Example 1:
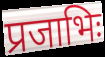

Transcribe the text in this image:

प्रजाभिः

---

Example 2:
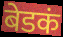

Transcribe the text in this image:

बेडकं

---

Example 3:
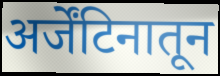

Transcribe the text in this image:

अर्जेंटिनातून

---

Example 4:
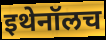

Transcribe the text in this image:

इथेनॉलच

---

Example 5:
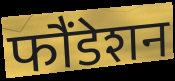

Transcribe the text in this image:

फौंडेशन